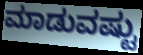
ಮಾಡುವಷ್ಟು